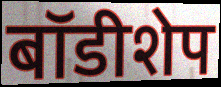
बॉडीशेप